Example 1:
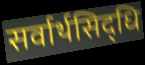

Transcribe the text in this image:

सर्वार्थसिद्धि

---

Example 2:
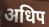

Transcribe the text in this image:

अधिप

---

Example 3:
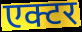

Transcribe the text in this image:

एक्टर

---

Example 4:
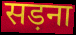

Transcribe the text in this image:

सड़ना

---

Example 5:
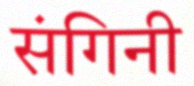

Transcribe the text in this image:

संगिनी